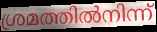
ശ്രമത്തിൽനിന്ന്